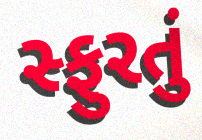
સ્ફુરતું